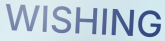
WISHING